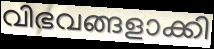
വിഭവങ്ങളാക്കി